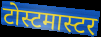
टोस्टमास्टर